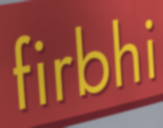
firbhi